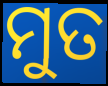
ମୁତ